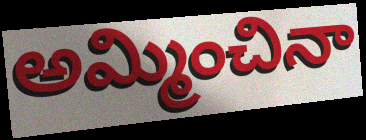
అమ్మించినా